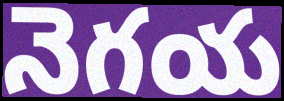
నెగయ